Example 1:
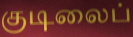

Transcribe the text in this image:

குடிலைப்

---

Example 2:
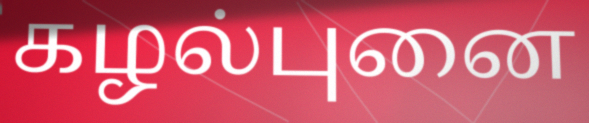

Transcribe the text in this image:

கழல்புனை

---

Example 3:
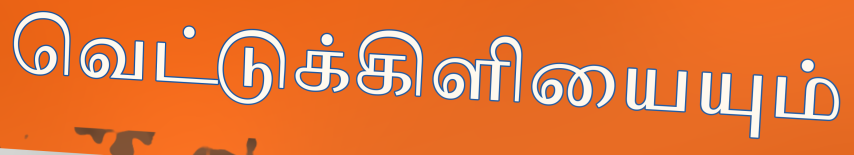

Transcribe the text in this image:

வெட்டுக்கிளியையும்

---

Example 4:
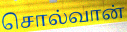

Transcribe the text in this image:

சொல்வான்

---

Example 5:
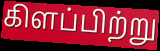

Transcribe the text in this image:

கிளப்பிற்று